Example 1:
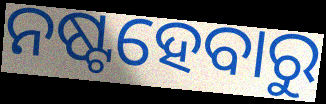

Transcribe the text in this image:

ନଷ୍ଟହେବାରୁ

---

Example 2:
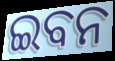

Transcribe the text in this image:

ଇବନ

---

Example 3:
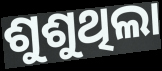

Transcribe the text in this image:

ଶୁଶୁଥିଲା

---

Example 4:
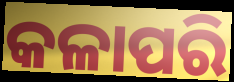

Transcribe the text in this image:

କଳାପରି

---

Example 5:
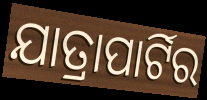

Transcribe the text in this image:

ଯାତ୍ରାପାର୍ଟିର